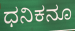
ಧನಿಕನೂ